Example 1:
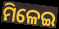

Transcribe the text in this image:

ମିଳେଇ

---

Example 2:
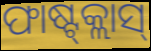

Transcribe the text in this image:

ଫାଷ୍ଟ୍‍କ୍ଲାସ୍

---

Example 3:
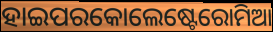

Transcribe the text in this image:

ହାଇପରକୋଲେଷ୍ଟେରୋମିଆ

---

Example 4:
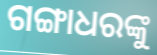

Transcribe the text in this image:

ଗଙ୍ଗାଧରଙ୍କୁ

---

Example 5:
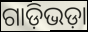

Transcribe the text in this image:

ଗାଡ଼ିଭଡ଼ା